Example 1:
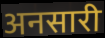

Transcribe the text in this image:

अनसारी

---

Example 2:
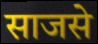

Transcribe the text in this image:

साजसे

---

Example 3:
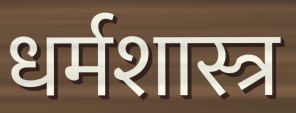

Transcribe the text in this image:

धर्मशास्त्र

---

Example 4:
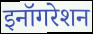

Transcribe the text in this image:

इनॉगरेशन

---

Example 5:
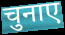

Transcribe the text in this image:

चुनाए